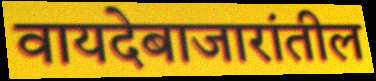
वायदेबाजारांतील